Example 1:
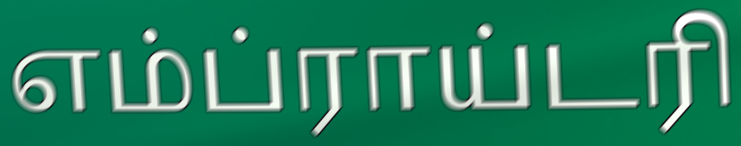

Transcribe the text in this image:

எம்ப்ராய்டரி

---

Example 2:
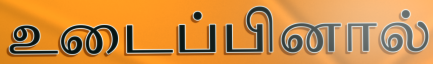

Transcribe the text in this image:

உடைப்பினால்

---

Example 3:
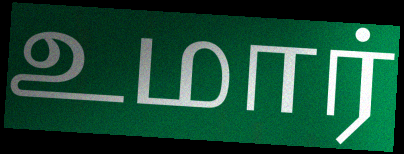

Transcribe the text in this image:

உமார்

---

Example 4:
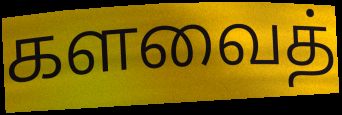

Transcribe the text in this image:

களவைத்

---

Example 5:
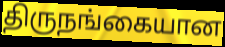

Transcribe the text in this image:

திருநங்கையான